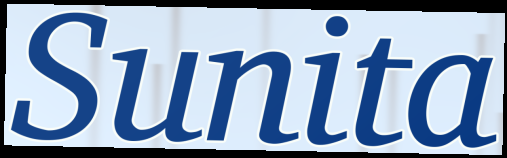
Sunita